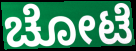
ಚೋಟೆ